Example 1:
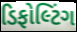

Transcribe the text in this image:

ડિફોલ્ટિંગ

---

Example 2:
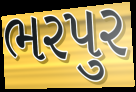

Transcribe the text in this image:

ભરપુર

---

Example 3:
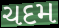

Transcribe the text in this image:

ચદમ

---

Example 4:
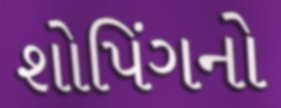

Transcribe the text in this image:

શોપિંગનો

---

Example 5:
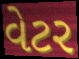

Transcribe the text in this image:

વેટર